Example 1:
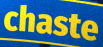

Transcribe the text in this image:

chaste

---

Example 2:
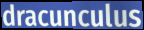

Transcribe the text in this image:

dracunculus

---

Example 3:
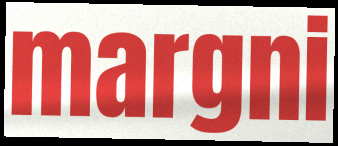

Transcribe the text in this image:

margni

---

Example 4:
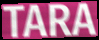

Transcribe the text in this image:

TARA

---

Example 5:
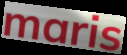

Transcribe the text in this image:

maris